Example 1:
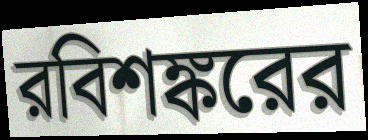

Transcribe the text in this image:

রবিশঙ্করের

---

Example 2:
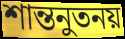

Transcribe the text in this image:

শান্তনুতনয়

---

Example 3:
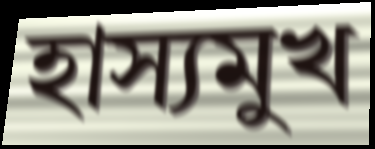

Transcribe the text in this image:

হাস্যমুখ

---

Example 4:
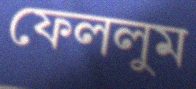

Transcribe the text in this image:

ফেললুম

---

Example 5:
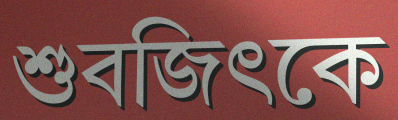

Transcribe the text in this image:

শুবজিৎকে